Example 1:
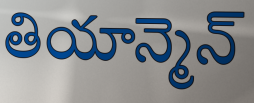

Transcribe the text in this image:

తియాన్మెన్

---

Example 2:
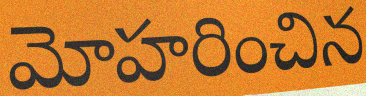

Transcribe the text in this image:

మోహరించిన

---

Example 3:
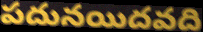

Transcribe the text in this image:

పదునయిదవది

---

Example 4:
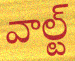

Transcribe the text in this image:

వాల్ట్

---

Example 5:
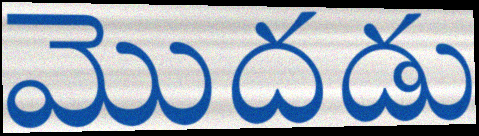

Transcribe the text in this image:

మొదడు